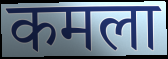
कमला